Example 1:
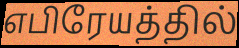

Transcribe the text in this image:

எபிரேயத்தில்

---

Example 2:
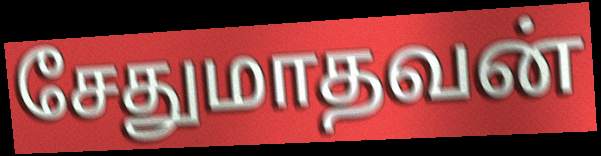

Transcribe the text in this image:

சேதுமாதவன்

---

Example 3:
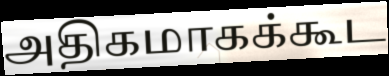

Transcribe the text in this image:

அதிகமாகக்கூட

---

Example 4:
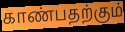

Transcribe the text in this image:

காண்பதற்கும்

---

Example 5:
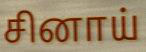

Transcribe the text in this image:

சினாய்